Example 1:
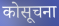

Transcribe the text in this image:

कोसूचना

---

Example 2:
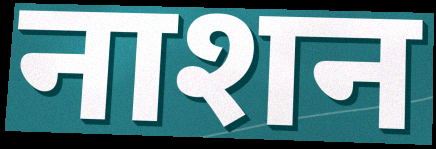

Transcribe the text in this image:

नाशन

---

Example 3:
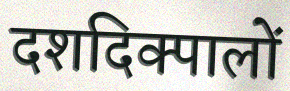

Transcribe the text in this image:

दशदिक्पालों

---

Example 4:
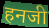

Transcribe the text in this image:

हनजी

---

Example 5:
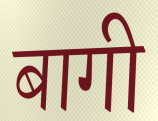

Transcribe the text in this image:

बागी